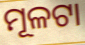
ମୂଳଟା